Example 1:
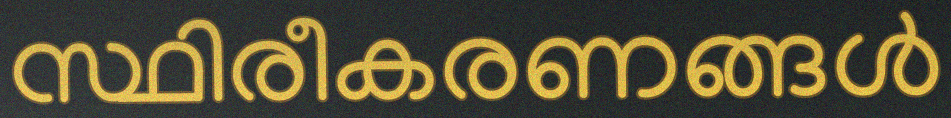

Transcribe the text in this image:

സ്ഥിരീകരണങ്ങൾ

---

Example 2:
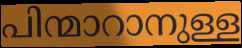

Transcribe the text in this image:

പിന്മാറാനുള്ള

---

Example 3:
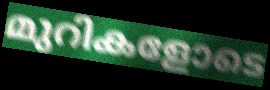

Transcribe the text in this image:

മുറികളോടെ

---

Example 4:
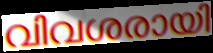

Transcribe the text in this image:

വിവശരായി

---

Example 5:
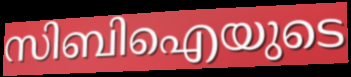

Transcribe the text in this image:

സിബിഐയുടെ